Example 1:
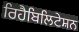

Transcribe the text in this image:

ਰਿਹੈਬਿਲਿਟੇਸ਼ਨ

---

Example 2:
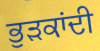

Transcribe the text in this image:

ਭੁੜਕਾਂਦੀ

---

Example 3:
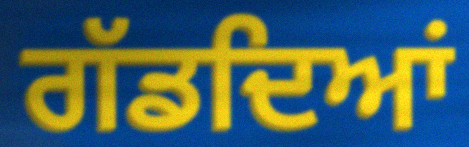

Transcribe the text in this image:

ਗੱਡਦਿਆਂ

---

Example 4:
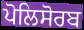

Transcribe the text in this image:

ਪੋਲਿਸੋਰਬ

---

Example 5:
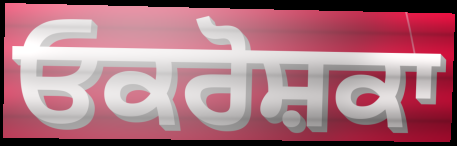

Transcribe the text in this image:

ਓਕਰੋਸ਼ਕਾ